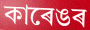
কাৰেঙৰ